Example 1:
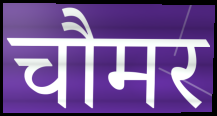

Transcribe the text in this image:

चौमर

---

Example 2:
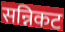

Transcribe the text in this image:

सन्निकट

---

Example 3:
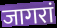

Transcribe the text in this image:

जागरां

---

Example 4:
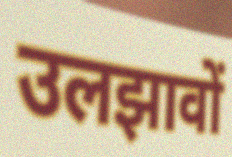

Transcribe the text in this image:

उलझावों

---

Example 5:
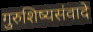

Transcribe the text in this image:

गुरुशिष्यसंवादे